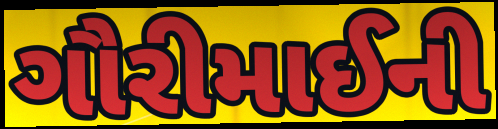
ગૌરીમાઈની